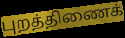
புறத்திணைக்